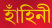
হাঁহিনী